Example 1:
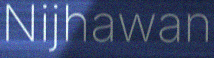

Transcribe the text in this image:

Nijhawan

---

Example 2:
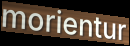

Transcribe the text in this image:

morientur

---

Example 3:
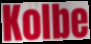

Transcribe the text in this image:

Kolbe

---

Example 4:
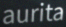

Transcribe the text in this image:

aurita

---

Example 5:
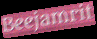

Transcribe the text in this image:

Beejamrit